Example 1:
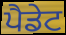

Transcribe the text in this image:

ਪੈਡੇਟ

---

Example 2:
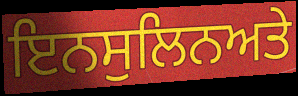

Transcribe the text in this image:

ਇਨਸੁਲਿਨਅਤੇ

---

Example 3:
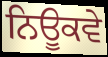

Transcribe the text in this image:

ਨਿਊਕਵੇ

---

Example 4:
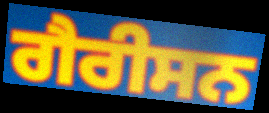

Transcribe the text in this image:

ਗੈਰੀਸਨ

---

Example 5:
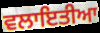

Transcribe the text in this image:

ਵਲਾਇਤੀਆ